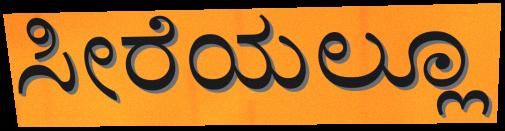
ಸೀರೆಯಲ್ಲೂ